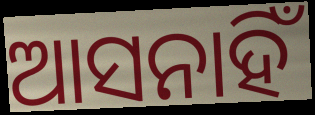
ଆସନାହିଁ